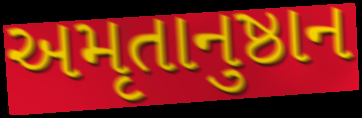
અમૃતાનુષ્ઠાન